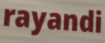
rayandi